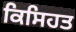
ਕਿਸਿਹਤ